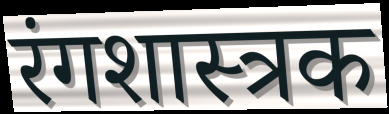
रंगशास्त्रक